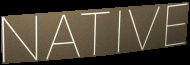
NATIVE